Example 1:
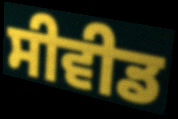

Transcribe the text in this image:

ਸੀਵੀਡ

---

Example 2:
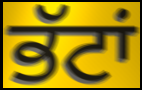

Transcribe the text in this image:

ਭੱਟਾਂ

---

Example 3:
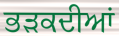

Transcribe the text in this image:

ਭੜਕਦੀਆਂ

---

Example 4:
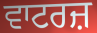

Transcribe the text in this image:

ਵਾਟਰਜ਼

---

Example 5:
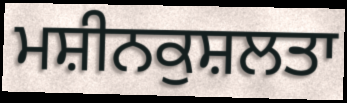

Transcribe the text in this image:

ਮਸ਼ੀਨਕੁਸ਼ਲਤਾ